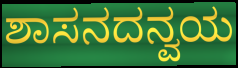
ಶಾಸನದನ್ವಯ